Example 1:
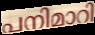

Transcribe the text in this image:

പനിമാറി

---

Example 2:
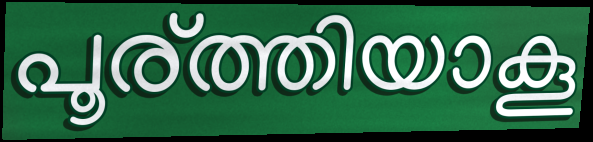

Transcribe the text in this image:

പൂര്ത്തിയാകൂ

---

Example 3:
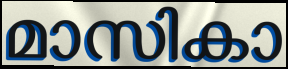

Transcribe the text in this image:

മാസികാ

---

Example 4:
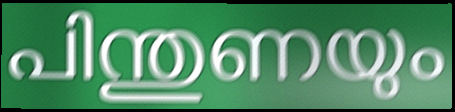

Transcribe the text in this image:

പിന്തുണയും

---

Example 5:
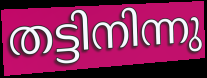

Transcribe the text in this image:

തട്ടിനിന്നു